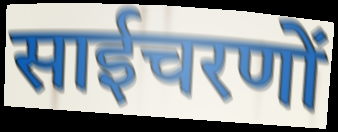
साईचरणों